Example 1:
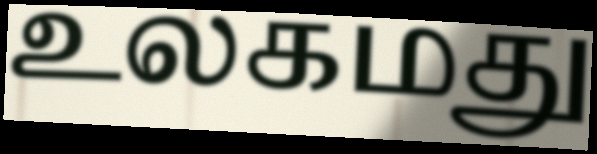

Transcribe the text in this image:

உலகமது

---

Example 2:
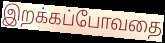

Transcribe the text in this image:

இறக்கப்போவதை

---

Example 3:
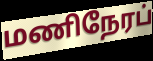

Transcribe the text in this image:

மணிநேரப்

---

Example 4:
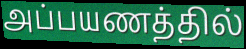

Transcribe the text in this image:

அப்பயணத்தில்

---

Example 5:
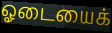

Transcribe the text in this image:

ஓடையைக்